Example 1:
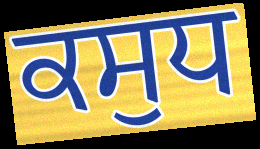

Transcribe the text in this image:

ਕਸੁਧ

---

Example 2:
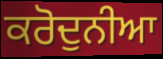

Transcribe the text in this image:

ਕਰੋਦੁਨੀਆ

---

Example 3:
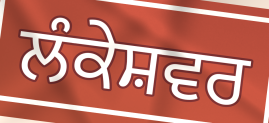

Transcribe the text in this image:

ਲੰਕੇਸ਼ਵਰ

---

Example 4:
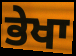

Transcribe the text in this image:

ਭੇਖਾ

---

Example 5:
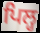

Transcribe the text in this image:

ਪਿਲ੍ਹ